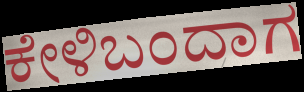
ಕೇಳಿಬಂದಾಗ